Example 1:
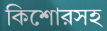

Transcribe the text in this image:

কিশোরসহ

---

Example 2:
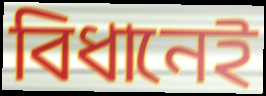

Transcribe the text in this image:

বিধানেই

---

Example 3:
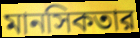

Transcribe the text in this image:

মানসিকতার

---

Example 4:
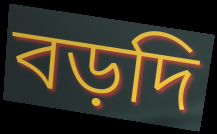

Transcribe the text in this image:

বড়দি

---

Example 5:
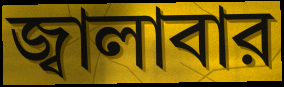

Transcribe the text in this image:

জ্বালাবার